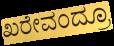
ಖರೇವಂದ್ರೂ